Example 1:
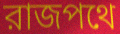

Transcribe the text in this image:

রাজপথে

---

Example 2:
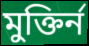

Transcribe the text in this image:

মুক্তির্ন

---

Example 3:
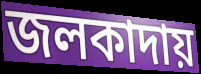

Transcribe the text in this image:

জলকাদায়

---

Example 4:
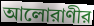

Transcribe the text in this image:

আলোরাণীর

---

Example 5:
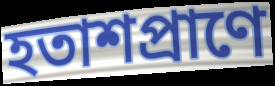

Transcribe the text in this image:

হতাশপ্রাণে